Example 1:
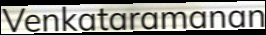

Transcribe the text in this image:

Venkataramanan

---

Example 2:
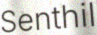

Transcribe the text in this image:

Senthil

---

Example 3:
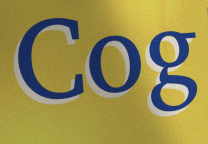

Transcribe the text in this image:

Cog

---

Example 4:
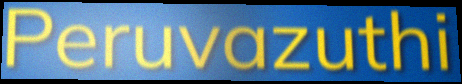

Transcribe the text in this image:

Peruvazuthi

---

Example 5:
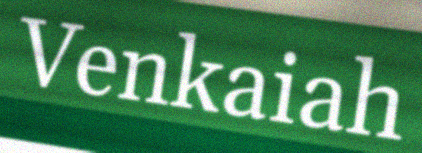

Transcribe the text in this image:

Venkaiah